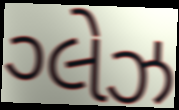
ગ્લેઝ